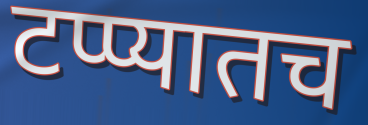
टप्प्यातच